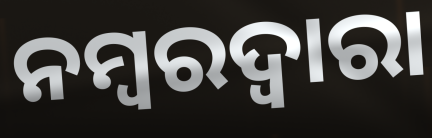
ନମ୍ବରଦ୍ୱାରା